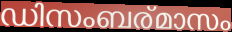
ഡിസംബര്മാസം